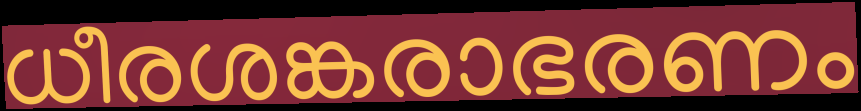
ധീരശങ്കരാഭരണം